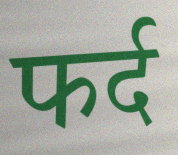
फर्द